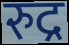
रुद्र